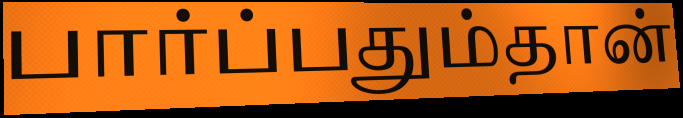
பார்ப்பதும்தான்